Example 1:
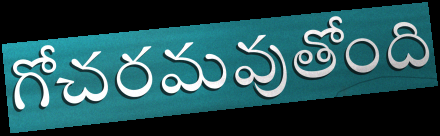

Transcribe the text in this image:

గోచరమవుతోంది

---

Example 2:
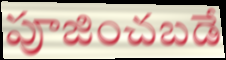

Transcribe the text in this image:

పూజించబడే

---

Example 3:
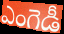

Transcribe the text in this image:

ఎంగెడీ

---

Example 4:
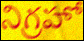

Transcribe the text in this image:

నిగ్రహో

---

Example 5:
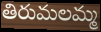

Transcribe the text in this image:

తిరుమలమ్మ